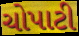
ચોપાટી